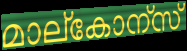
മാല്കോന്സ്